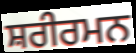
ਸ਼ਰੀਰਮਨ